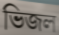
ভিজল